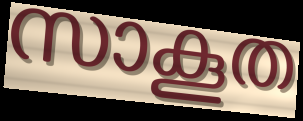
സാകൂത